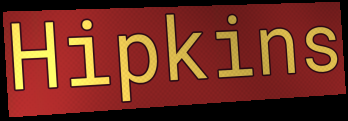
Hipkins